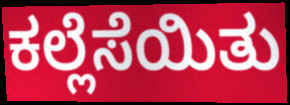
ಕಲ್ಲೆಸೆಯಿತು